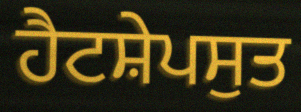
ਹੈਟਸ਼ੇਪਸੁਤ